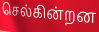
செல்கின்றன